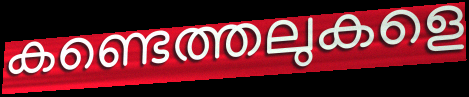
കണ്ടെത്തലുകളെ